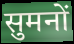
सुमनों